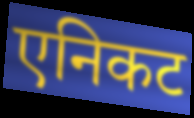
एनिकट